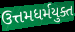
ઉત્તમધર્મયુક્ત